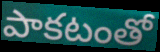
పాకటంతో